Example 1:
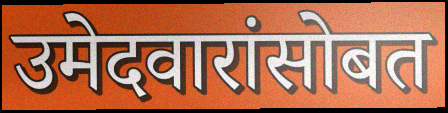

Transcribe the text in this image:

उमेदवारांसोबत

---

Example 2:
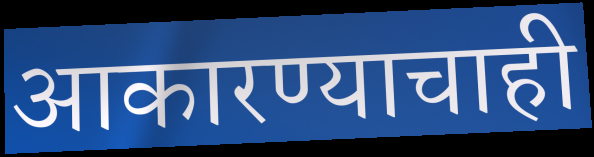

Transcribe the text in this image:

आकारण्याचाही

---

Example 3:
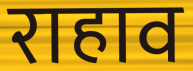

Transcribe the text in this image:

राहाव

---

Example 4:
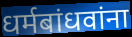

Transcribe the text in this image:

धर्मबांधवांना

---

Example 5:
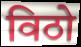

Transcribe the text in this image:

विठो